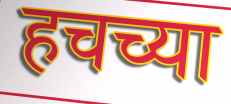
हचच्या